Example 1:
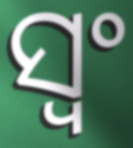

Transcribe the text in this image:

ସ୍ୱଂ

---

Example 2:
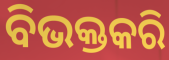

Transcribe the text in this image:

ବିଭକ୍ତକରି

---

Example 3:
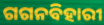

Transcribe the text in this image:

ଗଗନବିହାରୀ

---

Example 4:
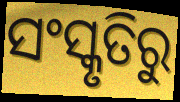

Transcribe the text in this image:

ସଂସ୍କୃତିରୁ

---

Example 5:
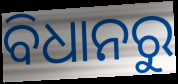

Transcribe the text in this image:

ବିଧାନରୁ